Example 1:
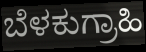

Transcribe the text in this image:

ಬೆಳಕುಗ್ರಾಹಿ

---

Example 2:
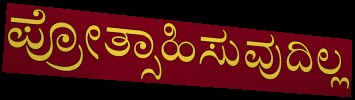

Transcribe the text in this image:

ಪ್ರೋತ್ಸಾಹಿಸುವುದಿಲ್ಲ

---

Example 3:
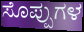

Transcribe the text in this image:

ಸೊಪ್ಪುಗಳ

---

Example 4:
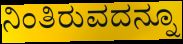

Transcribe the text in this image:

ನಿಂತಿರುವದನ್ನೂ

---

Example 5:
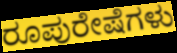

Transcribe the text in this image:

ರೂಪುರೇಷೆಗಳು